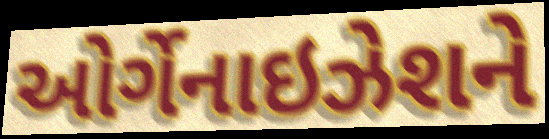
ઓર્ગેનાઇઝેશને